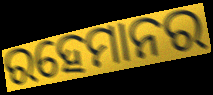
ରହେମାନର